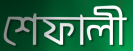
শেফালী